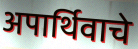
अपार्थिवाचे